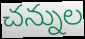
చన్నుల